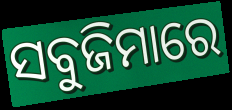
ସବୁଜିମାରେ